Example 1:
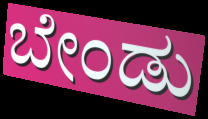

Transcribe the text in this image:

ಬೇಂಡು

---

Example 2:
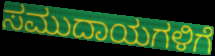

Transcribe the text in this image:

ಸಮುದಾಯಗಳಿಗೆ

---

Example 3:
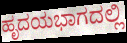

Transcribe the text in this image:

ಹೃದಯಭಾಗದಲ್ಲಿ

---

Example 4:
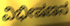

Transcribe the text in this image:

ವಿಭೀಷಣನ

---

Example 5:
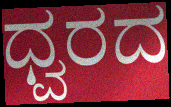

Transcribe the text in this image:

ಧ್ವರದ